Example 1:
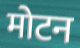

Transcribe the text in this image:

मोटन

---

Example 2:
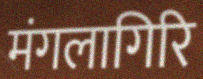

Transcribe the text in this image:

मंगलागिरि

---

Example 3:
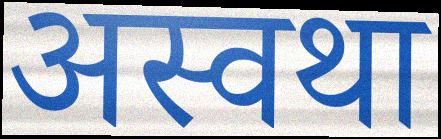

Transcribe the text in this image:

अस्वथा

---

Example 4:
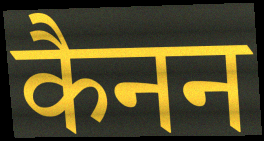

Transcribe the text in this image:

कैनन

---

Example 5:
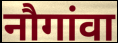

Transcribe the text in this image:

नौगांवा